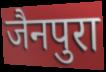
जैनपुरा